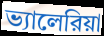
ভ্যালেরিয়া